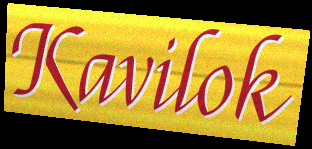
Kavilok